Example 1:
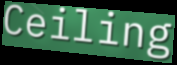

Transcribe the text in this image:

Ceiling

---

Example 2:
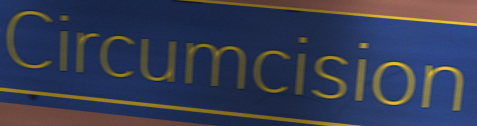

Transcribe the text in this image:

Circumcision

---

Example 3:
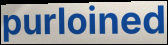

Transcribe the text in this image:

purloined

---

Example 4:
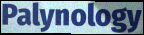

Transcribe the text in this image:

Palynology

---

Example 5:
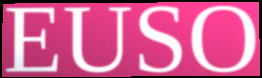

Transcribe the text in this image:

EUSO